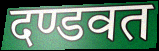
दण्‍डवत